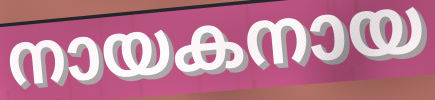
നായകനായ